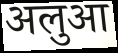
अलुआ